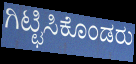
ಗಿಟ್ಟಿಸಿಕೊಂಡರು